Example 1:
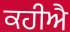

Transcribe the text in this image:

ਕਹੀਐ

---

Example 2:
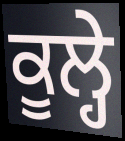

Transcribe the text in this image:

ਕੂਲ੍ਹੇ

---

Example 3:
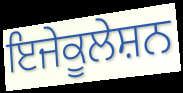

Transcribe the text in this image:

ਇਜੇਕੂਲੇਸ਼ਨ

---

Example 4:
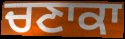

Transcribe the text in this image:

ਚਣਾਕਾ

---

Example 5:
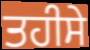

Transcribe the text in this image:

ਤਹੀਸੇ